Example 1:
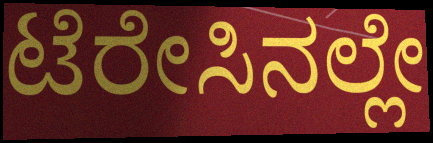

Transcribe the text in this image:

ಟೆರೇಸಿನಲ್ಲೇ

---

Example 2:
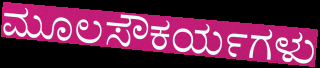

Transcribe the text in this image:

ಮೂಲಸೌಕರ್ಯಗಳು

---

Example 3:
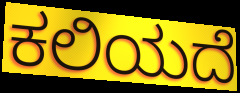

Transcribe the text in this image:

ಕಲಿಯದೆ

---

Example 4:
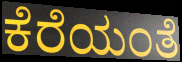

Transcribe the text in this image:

ಕೆರೆಯಂತೆ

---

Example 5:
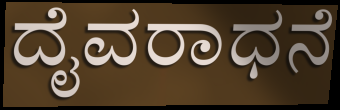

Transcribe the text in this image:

ದೈವರಾಧನೆ